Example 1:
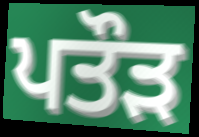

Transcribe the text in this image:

ਪਤੌੜ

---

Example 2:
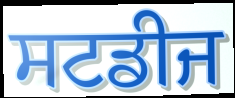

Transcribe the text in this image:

ਸਟਡੀਜ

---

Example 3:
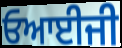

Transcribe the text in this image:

ਓਆਈਜੀ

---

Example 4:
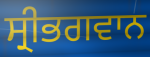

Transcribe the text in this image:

ਸ੍ਰੀਭਗਵਾਨ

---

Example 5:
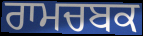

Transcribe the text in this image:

ਰਾਮਚਬਕ